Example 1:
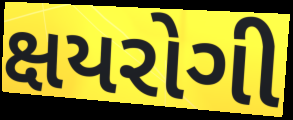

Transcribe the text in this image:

ક્ષયરોગી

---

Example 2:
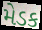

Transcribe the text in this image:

મેડક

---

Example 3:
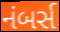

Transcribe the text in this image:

નંબર્સ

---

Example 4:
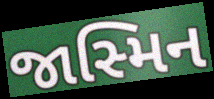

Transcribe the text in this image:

જાસ્મિન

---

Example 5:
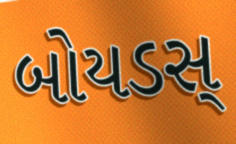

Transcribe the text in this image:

બોયડસ્